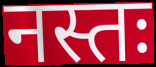
नस्तः